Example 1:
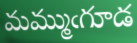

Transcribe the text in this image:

మమ్ముఁగూడ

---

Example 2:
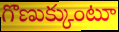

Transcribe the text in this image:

గొణుక్కుంటూ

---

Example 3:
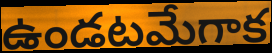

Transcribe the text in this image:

ఉండటమేగాక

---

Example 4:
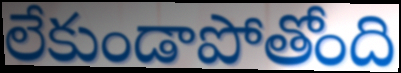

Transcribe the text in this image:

లేకుండాపోతోంది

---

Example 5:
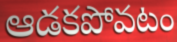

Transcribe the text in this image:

ఆడకపోవటం